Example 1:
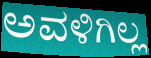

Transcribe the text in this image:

ಅವಳಿಗಿಲ್ಲ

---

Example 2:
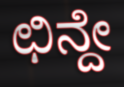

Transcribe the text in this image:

ಛಿನ್ದೇ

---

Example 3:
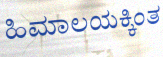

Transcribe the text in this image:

ಹಿಮಾಲಯಕ್ಕಿಂತ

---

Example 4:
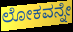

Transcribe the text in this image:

ಲೋಕವನ್ನೇ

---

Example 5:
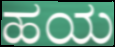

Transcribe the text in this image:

ಹಯ